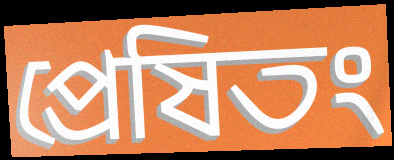
প্রেষিতং